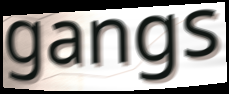
gangs